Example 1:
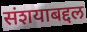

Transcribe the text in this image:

संशयाबद्दल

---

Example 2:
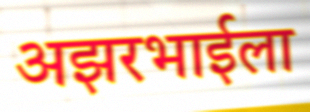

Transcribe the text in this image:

अझरभाईला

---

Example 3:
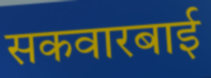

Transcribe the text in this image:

सकवारबाई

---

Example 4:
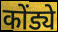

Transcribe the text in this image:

कोंड्ये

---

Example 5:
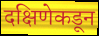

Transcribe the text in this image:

दक्षिणेकडून